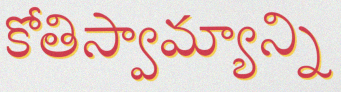
కోతిస్వామ్యాన్ని